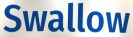
Swallow